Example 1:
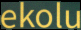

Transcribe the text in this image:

ekolu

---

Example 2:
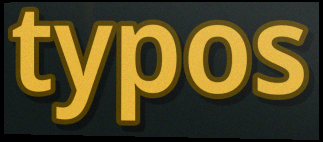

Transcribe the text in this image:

typos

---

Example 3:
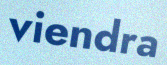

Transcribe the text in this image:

viendra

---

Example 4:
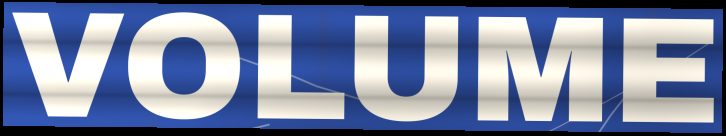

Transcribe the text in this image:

VOLUME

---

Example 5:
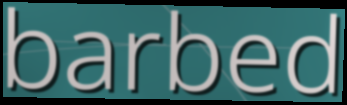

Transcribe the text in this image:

barbed